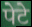
पेटे